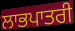
ਲਾਭਪਾਤਰੀ